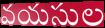
వయసుల